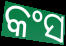
କଂସ